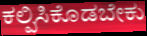
ಕಲ್ಪಿಸಿಕೊಡಬೇಕು